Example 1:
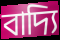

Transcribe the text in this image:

বাদ্যি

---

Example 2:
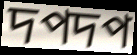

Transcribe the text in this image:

দপদপ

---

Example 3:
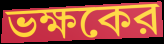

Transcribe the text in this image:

ভক্ষকের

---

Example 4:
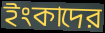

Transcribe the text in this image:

ইংকাদের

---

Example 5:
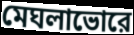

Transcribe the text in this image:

মেঘলাভোরে